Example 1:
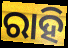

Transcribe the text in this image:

ରାହି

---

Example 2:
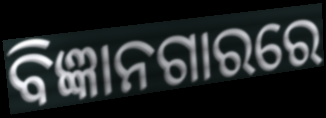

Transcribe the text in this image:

ବିଜ୍ଞାନଗାରରେ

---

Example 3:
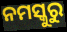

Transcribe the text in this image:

ନମସ୍କୁରୁ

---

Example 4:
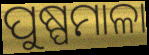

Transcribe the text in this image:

ପୁଷ୍ପମାଳା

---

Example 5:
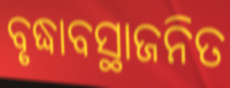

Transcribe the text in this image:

ବୃଦ୍ଧାବସ୍ଥାଜନିତ